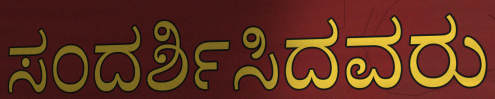
ಸಂದರ್ಶಿಸಿದವರು